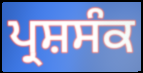
ਪ੍ਰਸ਼ਸੰਕ